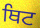
ਥਿਟ